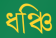
ধঞ্চি